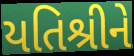
યતિશ્રીને